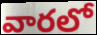
వారలో